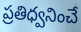
ప్రతిధ్వనించే